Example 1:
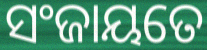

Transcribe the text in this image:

ସଂଜାୟତେ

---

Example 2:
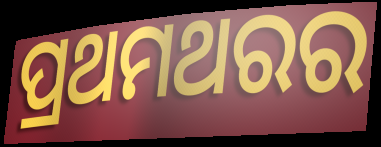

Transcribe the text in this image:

ପ୍ରଥମଥରର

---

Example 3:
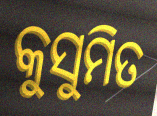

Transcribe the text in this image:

କୁସୁମିତ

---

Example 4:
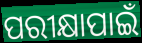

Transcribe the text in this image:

ପରୀକ୍ଷାପାଇଁ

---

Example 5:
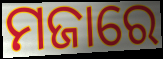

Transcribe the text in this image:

ମଜାରେ